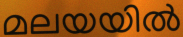
മലയയിൽ